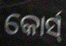
କୋର୍ସ୍